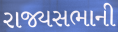
રાજ્યસભાની